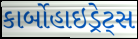
કાર્બોહાઇડ્રેટ્સ